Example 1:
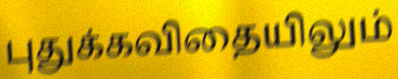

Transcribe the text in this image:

புதுக்கவிதையிலும்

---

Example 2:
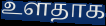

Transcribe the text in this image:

உளதாக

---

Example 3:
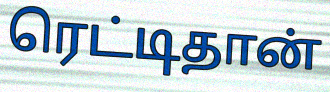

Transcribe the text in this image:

ரெட்டிதான்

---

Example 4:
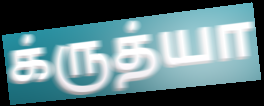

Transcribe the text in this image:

க்ருத்யா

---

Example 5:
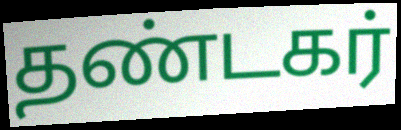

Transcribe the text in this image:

தண்டகர்